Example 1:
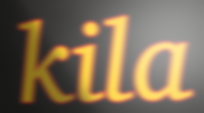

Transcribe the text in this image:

kila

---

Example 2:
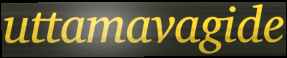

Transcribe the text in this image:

uttamavagide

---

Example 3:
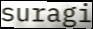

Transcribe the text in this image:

suragi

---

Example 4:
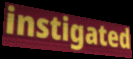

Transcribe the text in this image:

instigated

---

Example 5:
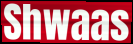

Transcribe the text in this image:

Shwaas